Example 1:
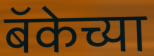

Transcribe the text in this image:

बॅकेच्या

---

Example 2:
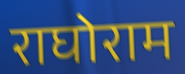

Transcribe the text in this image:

राघोराम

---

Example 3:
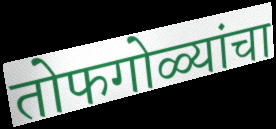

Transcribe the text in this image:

तोफगोळ्यांचा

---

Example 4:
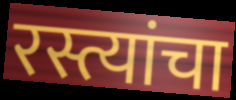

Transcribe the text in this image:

रस्त्यांचा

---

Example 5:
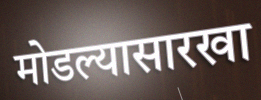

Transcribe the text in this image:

मोडल्यासारखा